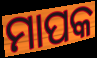
ମାପକ